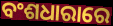
ବଂଶଧାରାରେ